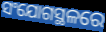
ସଂଯୋଗସ୍ଥଳରେ